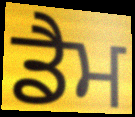
ਡੈਮ